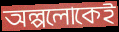
অল্পলোকেই